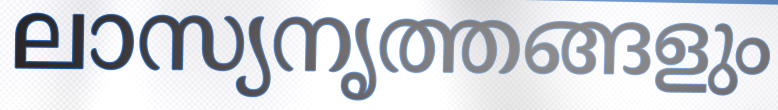
ലാസ്യനൃത്തങ്ങളും